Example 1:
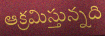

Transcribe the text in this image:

ఆక్రమిస్తున్నది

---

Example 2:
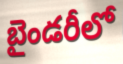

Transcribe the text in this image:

బైండరీలో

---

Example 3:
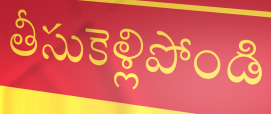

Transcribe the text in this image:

తీసుకెళ్లిపోండి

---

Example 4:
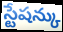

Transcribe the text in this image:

స్టేషన్కు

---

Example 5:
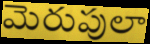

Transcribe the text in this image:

మెరుపులా